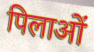
पिलाओं